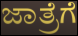
ಜಾತ್ರೆಗೆ